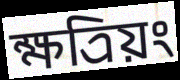
ক্ষত্রিয়ং